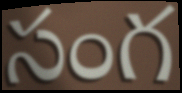
సంగ